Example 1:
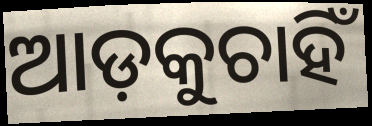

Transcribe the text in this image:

ଆଡ଼କୁଚାହିଁ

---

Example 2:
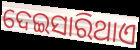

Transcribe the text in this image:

ଦେଇସାରିଥାଏ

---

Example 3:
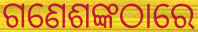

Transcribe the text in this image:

ଗଣେଶଙ୍କଠାରେ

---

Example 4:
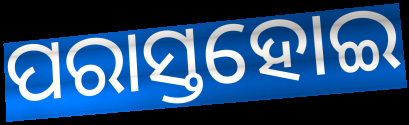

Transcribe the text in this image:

ପରାସ୍ତହୋଇ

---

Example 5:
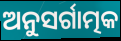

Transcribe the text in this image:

ଅନୁସର୍ଗାତ୍ମକ